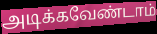
அடிக்கவேண்டாம்